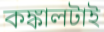
কঙ্কালটাই